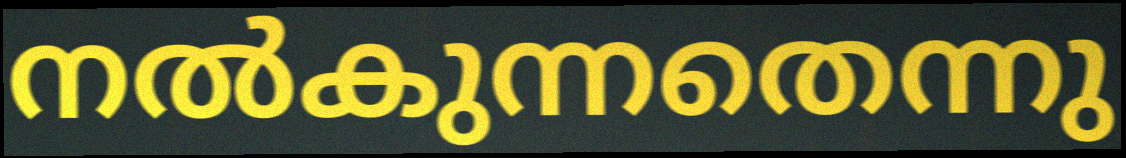
നൽകുന്നതെന്നു